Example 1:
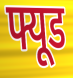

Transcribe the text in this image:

फ्यूड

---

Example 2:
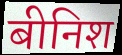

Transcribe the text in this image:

बीनिश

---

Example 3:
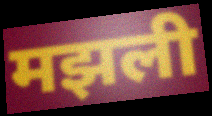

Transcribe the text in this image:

मझली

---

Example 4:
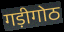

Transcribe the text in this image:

गड़ीगोठ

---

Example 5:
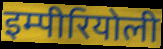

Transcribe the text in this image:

इम्पीरियोली